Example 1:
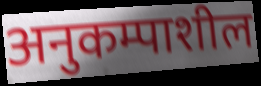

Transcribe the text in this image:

अनुकम्पाशील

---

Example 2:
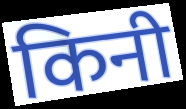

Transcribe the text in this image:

किनी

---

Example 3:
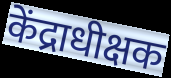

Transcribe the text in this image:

केंद्राधीक्षक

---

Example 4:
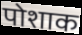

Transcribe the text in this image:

पोशाक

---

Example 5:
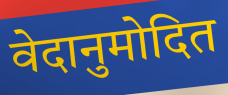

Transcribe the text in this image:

वेदानुमोदित